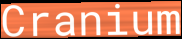
Cranium